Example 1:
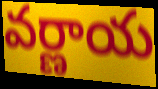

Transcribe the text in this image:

వర్ణాయ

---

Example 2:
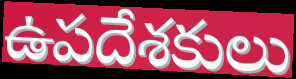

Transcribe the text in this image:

ఉపదేశకులు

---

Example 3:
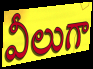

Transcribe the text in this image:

వీలుగా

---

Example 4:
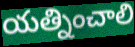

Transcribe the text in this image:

యత్నించాలి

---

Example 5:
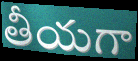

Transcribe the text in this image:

తీయగా